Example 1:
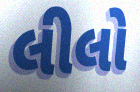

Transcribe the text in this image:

લીલો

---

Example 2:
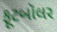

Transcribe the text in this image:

ફૂટબૉલર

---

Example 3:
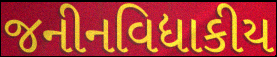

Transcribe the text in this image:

જનીનવિદ્યાકીય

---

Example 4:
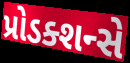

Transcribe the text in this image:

પ્રોડક્શન્સે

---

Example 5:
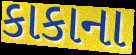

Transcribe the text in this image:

કાકાના